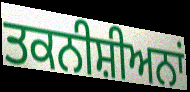
ਤਕਨੀਸ਼ੀਅਨਾਂ